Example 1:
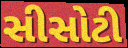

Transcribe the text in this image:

સીસોટી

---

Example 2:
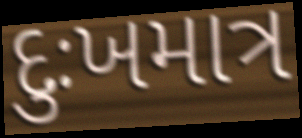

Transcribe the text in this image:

દુઃખમાત્ર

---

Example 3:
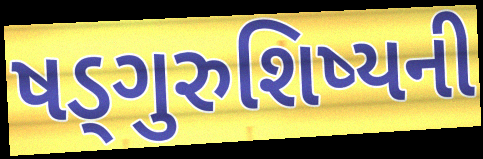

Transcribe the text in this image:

ષડ્ગુરુશિષ્યની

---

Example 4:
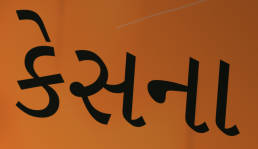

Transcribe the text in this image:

કેસના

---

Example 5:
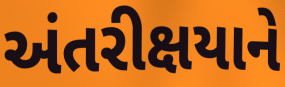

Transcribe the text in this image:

અંતરીક્ષયાને